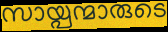
സായ്പന്മാരുടെ